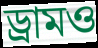
ড্রামও